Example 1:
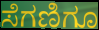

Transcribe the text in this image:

ಸೆಗಣಿಗೂ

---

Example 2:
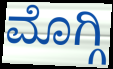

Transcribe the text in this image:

ಮೊಗ್ಗಿ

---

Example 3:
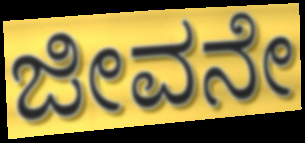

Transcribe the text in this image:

ಜೀವನೇ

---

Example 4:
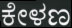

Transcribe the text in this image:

ಕೇಳಣ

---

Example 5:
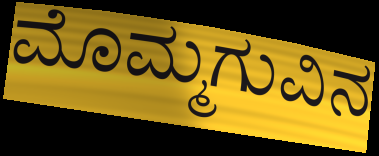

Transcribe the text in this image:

ಮೊಮ್ಮಗುವಿನ